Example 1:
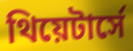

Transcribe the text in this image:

থিয়েটার্সে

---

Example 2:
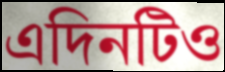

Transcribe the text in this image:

এদিনটিও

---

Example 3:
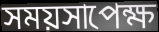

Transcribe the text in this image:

সময়সাপেক্ষ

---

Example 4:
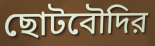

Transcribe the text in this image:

ছোটবৌদির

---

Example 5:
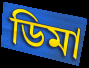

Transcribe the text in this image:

ডিমা